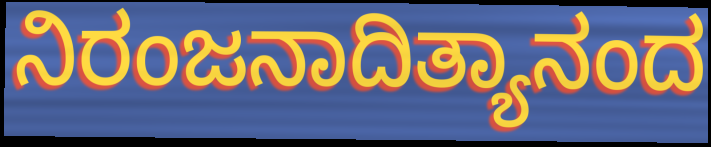
ನಿರಂಜನಾದಿತ್ಯಾನಂದ